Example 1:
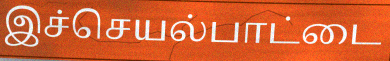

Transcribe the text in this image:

இச்செயல்பாட்டை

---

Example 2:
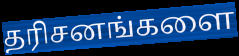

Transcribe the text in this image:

தரிசனங்களை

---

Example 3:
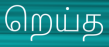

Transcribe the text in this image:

றெய்த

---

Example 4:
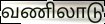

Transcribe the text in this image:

வணிலாடு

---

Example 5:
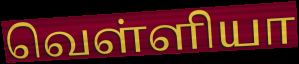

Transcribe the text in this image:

வெள்ளியா